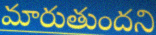
మారుతుందని